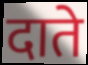
दाते